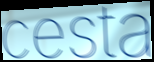
cesta